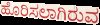
ಹೊರಿಸಲಾಗಿರುವ